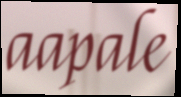
aapale